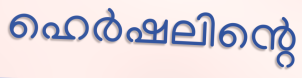
ഹെർഷലിന്റെ